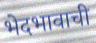
भेदभावाची